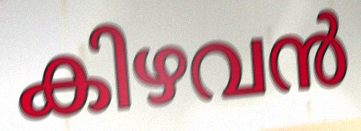
കിഴവൻ